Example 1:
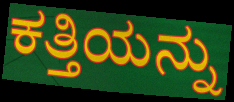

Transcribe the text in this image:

ಕತ್ತಿಯನ್ನು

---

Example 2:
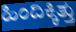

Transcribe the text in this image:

ಹಿಂದಿಕ್ಕಿತ್ತು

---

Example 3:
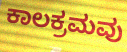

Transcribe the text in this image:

ಕಾಲಕ್ರಮವು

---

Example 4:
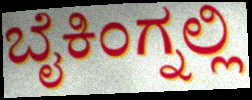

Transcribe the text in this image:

ಬೈಕಿಂಗ್ನಲ್ಲಿ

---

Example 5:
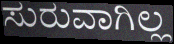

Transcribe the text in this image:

ಸುರುವಾಗಿಲ್ಲ